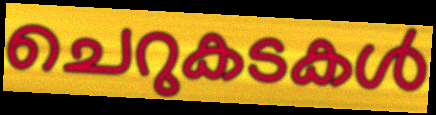
ചെറുകടകൾ